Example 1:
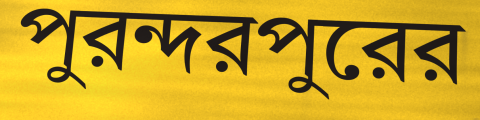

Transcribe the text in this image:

পুরন্দরপুরের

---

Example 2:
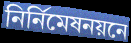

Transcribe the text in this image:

নির্নিমেষনয়নে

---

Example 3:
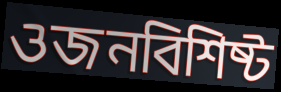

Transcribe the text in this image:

ওজনবিশিষ্ট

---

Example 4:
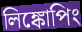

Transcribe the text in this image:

লিঙ্কোপিং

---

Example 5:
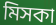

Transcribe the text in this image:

মিসকা